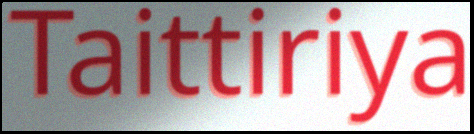
Taittiriya